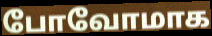
போவோமாக